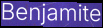
Benjamite